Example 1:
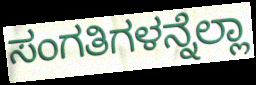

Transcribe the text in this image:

ಸಂಗತಿಗಳನ್ನೆಲ್ಲಾ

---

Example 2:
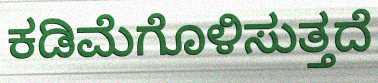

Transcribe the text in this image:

ಕಡಿಮೆಗೊಳಿಸುತ್ತದೆ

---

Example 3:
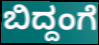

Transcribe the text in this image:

ಬಿದ್ದಂಗೆ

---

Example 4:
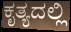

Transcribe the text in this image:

ಕೃತ್ಯದಲ್ಲಿ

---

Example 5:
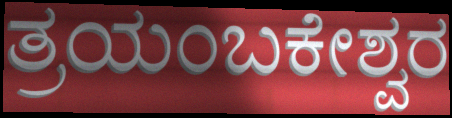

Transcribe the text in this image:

ತ್ರಯಂಬಕೇಶ್ವರ